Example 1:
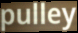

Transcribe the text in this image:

pulley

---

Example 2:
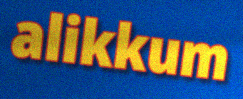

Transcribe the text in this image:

alikkum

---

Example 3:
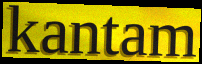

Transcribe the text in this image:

kantam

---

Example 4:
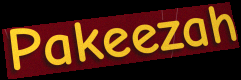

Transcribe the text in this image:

Pakeezah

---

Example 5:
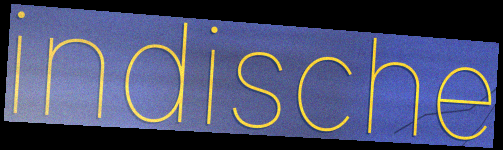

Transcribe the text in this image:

indische